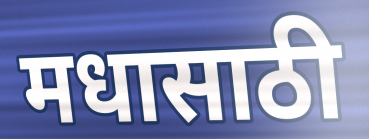
मधासाठी